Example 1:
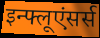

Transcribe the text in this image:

इन्फ्लूएंसर्स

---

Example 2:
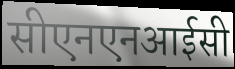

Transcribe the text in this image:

सीएनएनआईसी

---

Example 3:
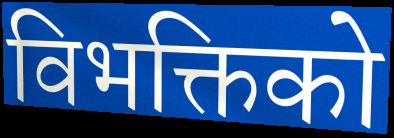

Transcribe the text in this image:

विभक्तिको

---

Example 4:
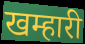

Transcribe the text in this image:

खम्हारी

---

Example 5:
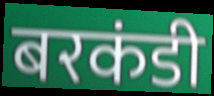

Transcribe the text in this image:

बरकंडी